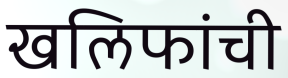
खलिफांची